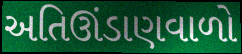
અતિઊંડાણવાળો